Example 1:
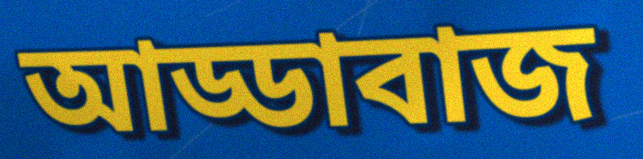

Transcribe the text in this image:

আড্ডাবাজ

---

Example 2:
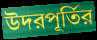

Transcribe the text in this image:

উদরপূর্তির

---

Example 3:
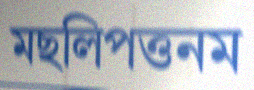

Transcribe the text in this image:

মছলিপত্তনম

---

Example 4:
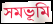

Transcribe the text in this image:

সমভূমি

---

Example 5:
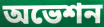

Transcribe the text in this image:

অভেশন